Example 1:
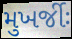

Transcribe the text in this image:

મુખર્જીઃ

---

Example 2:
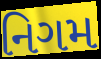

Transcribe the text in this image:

નિગમ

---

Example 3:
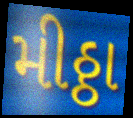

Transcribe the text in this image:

મીઠ્ઠા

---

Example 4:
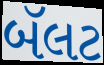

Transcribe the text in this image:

બૅલટ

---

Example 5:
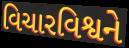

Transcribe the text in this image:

વિચારવિશ્વને